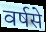
वर्षसे